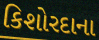
કિશોરદાના